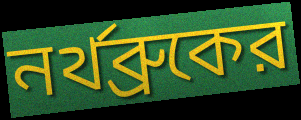
নর্থব্রুকের